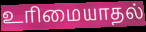
உரிமையாதல்